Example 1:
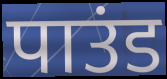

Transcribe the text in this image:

पाउंड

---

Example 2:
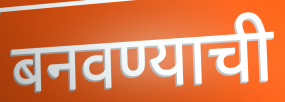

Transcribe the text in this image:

बनवण्याची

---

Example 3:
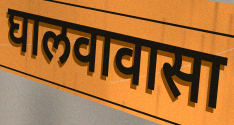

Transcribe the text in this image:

घालवावासा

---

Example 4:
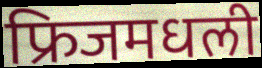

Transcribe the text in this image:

फ्रिजमधली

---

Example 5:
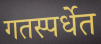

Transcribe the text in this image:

गतस्पर्धेत